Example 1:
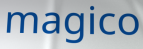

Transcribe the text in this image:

magico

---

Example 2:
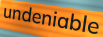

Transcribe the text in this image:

undeniable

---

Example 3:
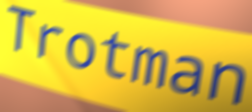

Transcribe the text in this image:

Trotman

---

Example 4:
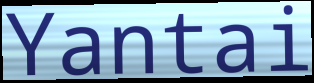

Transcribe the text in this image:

Yantai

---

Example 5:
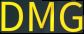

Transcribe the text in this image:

DMG